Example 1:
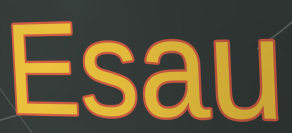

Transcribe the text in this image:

Esau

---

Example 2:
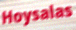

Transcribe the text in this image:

Hoysalas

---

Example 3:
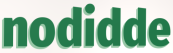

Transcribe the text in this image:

nodidde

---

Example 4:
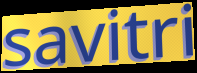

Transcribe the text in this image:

savitri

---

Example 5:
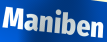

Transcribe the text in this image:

Maniben